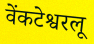
वेंकटेश्वरलू